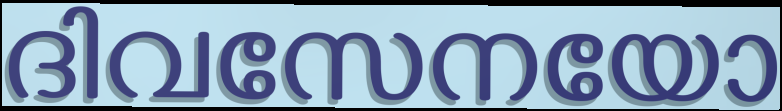
ദിവസേനയോ